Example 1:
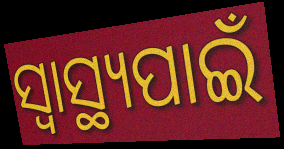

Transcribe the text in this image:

ସ୍ଵାସ୍ଥ୍ୟପାଇଁ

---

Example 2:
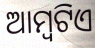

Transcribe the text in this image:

ଆମ୍ବଟିଏ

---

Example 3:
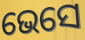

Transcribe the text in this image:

ଭେସେ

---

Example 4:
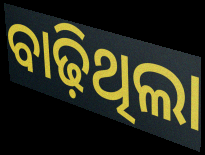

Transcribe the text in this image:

ବାଢ଼ିଥିଲା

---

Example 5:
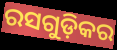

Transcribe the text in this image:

ରସଗୁଡ଼ିକର